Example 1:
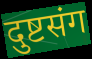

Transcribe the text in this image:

दुष्टसंग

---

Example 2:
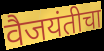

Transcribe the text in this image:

वैजयंतीचा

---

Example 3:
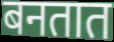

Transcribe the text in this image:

बनतात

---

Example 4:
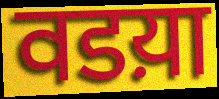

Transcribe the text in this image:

वडय़ा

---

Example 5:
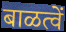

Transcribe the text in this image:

बाळत्वें